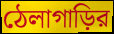
ঠেলাগাড়ির